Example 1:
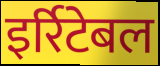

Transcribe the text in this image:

इर्रिटेबल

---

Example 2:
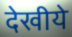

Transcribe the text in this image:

देखीये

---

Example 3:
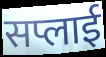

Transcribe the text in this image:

सप्लाई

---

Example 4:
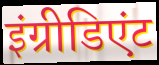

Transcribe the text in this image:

इंग्रीडिएंट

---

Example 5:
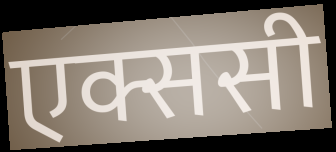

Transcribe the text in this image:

एक्ससी